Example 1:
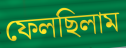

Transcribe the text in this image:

ফেলছিলাম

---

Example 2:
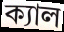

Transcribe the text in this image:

ক্যাল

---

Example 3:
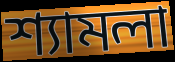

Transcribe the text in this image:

শ্যামলা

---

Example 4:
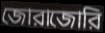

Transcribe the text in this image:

জোরাজোরি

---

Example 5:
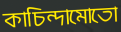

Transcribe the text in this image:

কাচিন্দামোতো